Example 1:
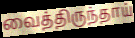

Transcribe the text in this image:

வைத்திருந்தாய்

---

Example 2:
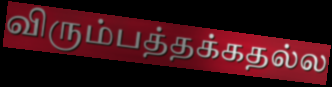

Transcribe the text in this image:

விரும்பத்தக்கதல்ல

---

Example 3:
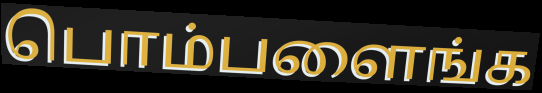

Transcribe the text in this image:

பொம்பளைங்க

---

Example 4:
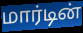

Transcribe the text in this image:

மார்டின்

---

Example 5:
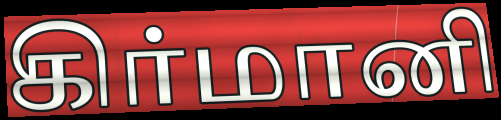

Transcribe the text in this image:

கிர்மானி